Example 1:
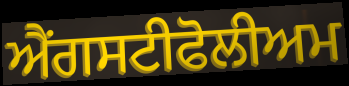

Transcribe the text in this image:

ਐਂਗਸਟੀਫੋਲੀਅਮ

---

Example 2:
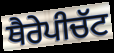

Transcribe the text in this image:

ਥੈਰੇਪੀਚੱਟ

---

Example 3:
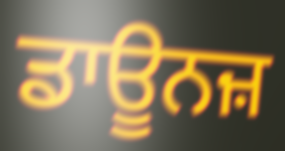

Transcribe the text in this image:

ਡਾਊਨਜ਼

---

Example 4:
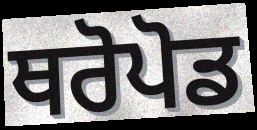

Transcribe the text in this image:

ਥਰੋਪੋਡ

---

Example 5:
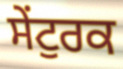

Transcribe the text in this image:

ਸੇਂਟੁਰਕ